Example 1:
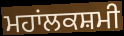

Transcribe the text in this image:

ਮਹਾਂਲਕਸ਼ਮੀ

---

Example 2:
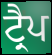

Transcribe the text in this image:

ਟ੍ਰੈਪ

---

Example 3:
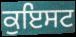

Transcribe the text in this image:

ਕੁਇਸਟ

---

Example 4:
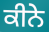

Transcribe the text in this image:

ਕੀਨੇ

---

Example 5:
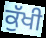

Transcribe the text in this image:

ਕੁੱਖੀ